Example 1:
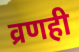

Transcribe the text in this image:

व्रणही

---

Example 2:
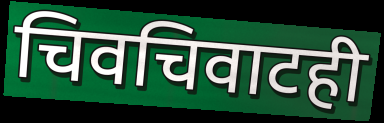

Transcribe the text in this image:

चिवचिवाटही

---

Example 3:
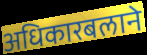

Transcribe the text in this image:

अधिकारबलाने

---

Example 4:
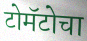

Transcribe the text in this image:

टोमॅटोचा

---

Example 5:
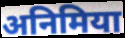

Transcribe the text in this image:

अनिमिया